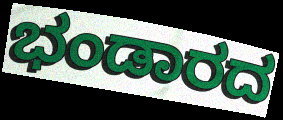
ಭಂಡಾರದ